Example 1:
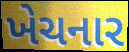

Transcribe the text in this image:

ખેચનાર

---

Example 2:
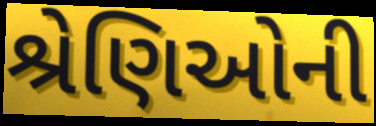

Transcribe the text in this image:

શ્રેણિઓની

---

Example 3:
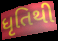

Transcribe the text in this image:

ધૃતિથી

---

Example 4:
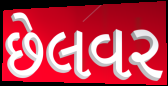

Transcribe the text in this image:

છેલવર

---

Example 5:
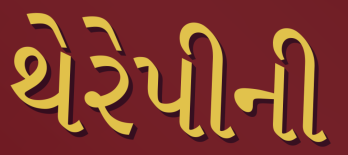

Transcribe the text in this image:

થેરેપીની